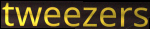
tweezers